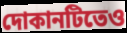
দোকানটিতেও